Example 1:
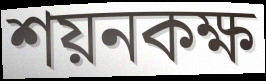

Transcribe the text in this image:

শয়নকক্ষ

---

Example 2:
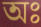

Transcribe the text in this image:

অঃ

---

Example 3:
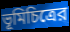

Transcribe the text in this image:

ভূমিচিত্রের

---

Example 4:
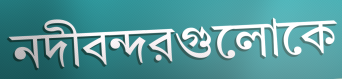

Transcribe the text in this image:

নদীবন্দরগুলোকে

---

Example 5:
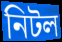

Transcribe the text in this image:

নিটল